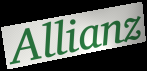
Allianz